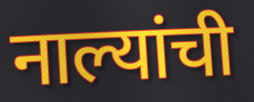
नाल्यांची